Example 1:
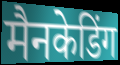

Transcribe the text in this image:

मैनकेडिंग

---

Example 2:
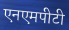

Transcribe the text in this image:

एनएमपीटी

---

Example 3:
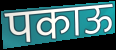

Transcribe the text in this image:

पकाऊ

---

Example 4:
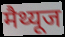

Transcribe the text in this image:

मैथ्यूज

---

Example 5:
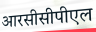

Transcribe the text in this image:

आरसीसीपीएल